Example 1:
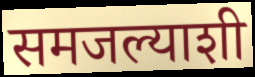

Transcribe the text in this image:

समजल्याशी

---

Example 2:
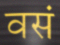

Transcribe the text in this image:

वसं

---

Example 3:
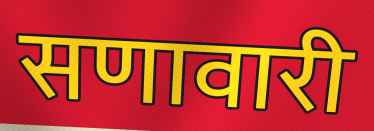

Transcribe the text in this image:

सणावारी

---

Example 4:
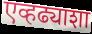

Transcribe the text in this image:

एव्हढ्याशा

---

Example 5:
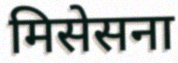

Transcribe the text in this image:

मिसेसना